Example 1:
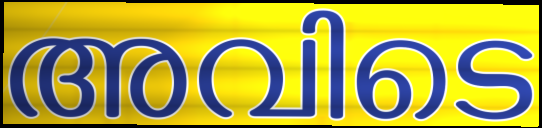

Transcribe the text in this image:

അവിടെ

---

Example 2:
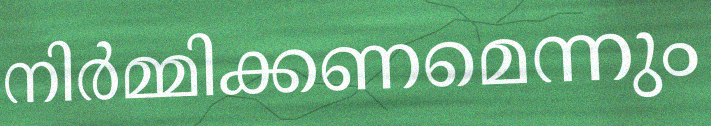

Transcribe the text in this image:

നിർമ്മിക്കണമെന്നും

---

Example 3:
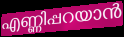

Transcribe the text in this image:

എണ്ണിപ്പറയാൻ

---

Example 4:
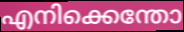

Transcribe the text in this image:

എനിക്കെന്തോ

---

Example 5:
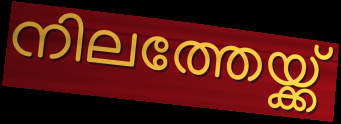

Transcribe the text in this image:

നിലത്തേയ്ക്ക്